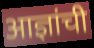
आज्ञांची